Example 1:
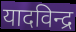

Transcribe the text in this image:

यादविन्द्र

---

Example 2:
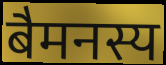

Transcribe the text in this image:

बैमनस्य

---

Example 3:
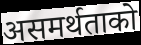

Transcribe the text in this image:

असमर्थताको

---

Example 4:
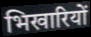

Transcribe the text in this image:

भिखारियों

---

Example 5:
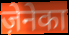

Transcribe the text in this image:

ज़ेनेका